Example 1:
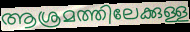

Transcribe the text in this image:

ആശ്രമത്തിലേക്കുള്ള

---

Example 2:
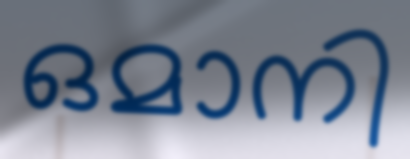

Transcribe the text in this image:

ഒമാനി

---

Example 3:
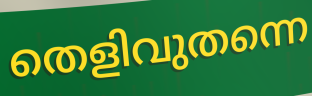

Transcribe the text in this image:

തെളിവുതന്നെ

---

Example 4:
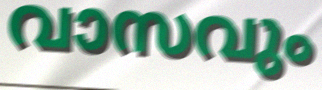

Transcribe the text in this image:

വാസവും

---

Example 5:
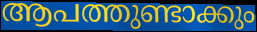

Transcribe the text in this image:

ആപത്തുണ്ടാക്കും